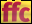
ffc